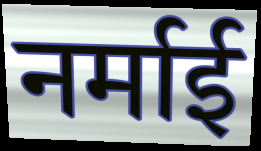
नर्माई